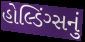
હોલ્ડિંગ્સનું